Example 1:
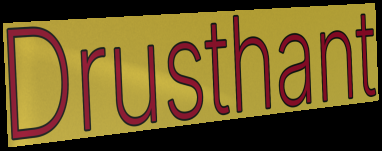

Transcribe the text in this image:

Drusthant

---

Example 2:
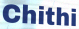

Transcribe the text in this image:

Chithi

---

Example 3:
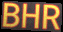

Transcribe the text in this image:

BHR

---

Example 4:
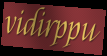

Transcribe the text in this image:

vidirppu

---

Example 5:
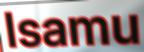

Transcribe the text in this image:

Isamu